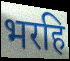
भरहि